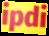
ipdi